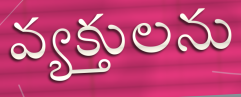
వ్యక్తులను